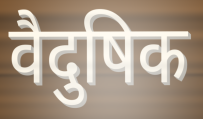
वैदुषिक